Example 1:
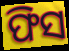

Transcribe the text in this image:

ଫିସ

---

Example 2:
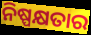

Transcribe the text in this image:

ନିଷ୍ପକ୍ଷତାର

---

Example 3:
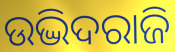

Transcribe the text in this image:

ଉଦ୍ଭିଦରାଜି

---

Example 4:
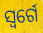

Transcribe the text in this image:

ସ୍ୱର୍ଗେ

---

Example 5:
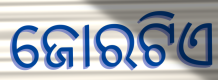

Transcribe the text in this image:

ଜୋରଟିଏ